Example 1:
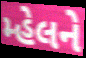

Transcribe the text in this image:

મ્હેલને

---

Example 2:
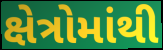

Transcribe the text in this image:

ક્ષેત્રોમાંથી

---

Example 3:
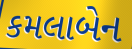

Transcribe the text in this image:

કમલાબેન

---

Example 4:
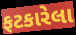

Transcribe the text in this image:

ફટકારેલા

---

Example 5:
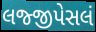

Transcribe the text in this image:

લજ્જીપેસલં